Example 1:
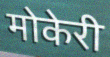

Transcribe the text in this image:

मोकेरी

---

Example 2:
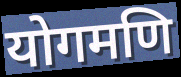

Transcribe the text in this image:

योगमणि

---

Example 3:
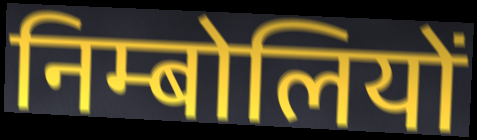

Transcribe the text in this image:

निम्बोलियों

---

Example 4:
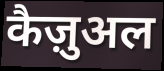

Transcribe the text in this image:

कैज़ुअल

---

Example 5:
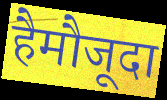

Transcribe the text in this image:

हैमौजूदा